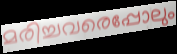
മരിച്ചവരെപ്പോലും